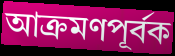
আক্রমণপূর্বক